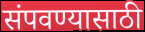
संपवण्यासाठी